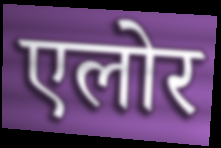
एलोर